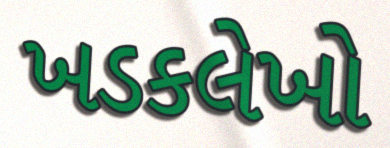
ખડકલેખો